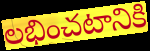
లభించటానికి